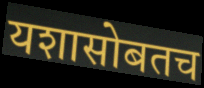
यशासोबतच